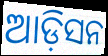
ଆଡ଼ିସନ